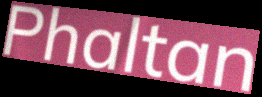
Phaltan